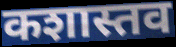
कशास्तव